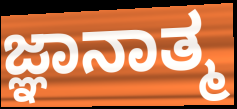
ಜ್ಞಾನಾತ್ಮ